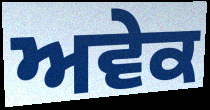
ਅਵੇਕ